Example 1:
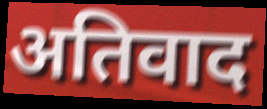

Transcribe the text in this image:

अतिवाद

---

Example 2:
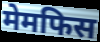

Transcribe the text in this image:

मेमफिस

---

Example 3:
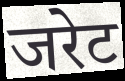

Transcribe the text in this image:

जरेट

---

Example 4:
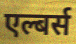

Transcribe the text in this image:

एल्बर्स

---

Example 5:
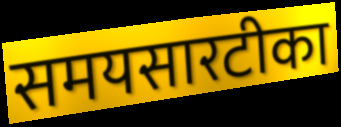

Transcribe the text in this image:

समयसारटीका